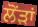
ਲੋਂੜਾਂ